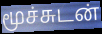
மூச்சுடன்